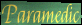
Paramedic